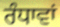
ਰੰਧਾਵਾਂ